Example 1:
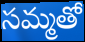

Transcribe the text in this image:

సమ్మతో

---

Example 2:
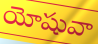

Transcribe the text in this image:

యోషువా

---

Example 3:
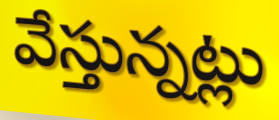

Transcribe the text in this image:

వేస్తున్నట్లు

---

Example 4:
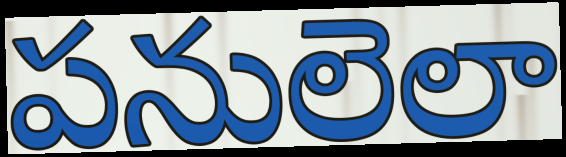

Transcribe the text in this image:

పనులెలా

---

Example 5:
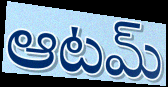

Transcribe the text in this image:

ఆటమ్